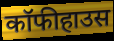
कॉफीहाउस